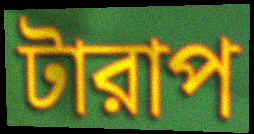
টারাপ